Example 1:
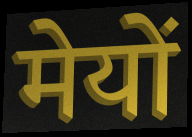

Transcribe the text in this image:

मेयों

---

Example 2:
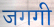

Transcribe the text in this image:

जगगी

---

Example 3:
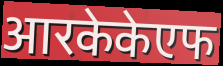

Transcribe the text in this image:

आरकेकेएफ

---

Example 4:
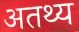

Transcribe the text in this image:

अतथ्य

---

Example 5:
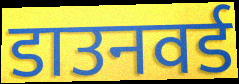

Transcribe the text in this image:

डाउनवर्ड